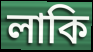
লাকি